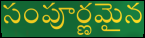
సంపూర్ణమైన